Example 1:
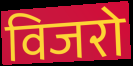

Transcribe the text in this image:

विजरो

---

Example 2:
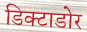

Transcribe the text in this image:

डिक्टाडोर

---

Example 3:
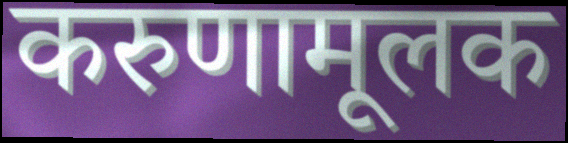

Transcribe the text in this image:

करुणामूलक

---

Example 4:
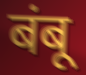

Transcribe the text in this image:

बंबू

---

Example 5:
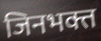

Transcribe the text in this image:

जिनभक्त